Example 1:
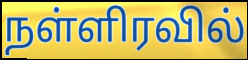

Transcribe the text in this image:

நள்ளிரவில்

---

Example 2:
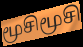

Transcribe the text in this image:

மூசிமூசி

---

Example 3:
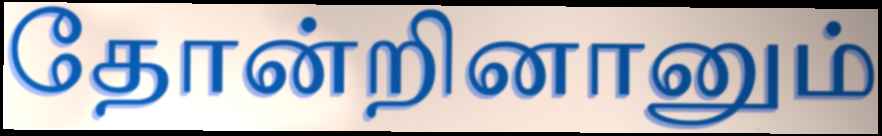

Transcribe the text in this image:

தோன்றினானும்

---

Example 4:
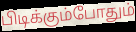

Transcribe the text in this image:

பிடிக்கும்போதும்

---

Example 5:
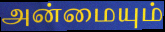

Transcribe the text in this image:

அன்மையும்